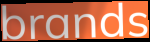
brands